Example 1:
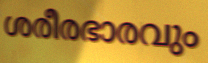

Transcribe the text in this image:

ശരീരഭാരവും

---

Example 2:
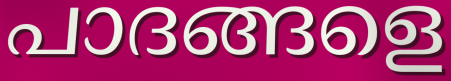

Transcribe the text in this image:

പാദങ്ങളെ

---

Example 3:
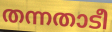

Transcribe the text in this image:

തന്നതാടീ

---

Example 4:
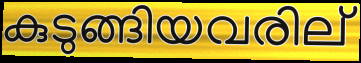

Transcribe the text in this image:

കുടുങ്ങിയവരില്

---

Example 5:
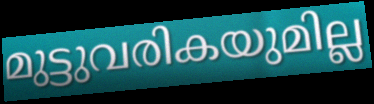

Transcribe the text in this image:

മുട്ടുവരികയുമില്ല